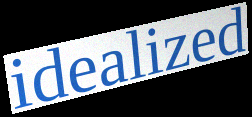
idealized